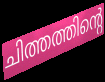
ചിത്തത്തിന്റെ